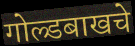
गोल्डबाखचे